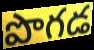
పొగడ